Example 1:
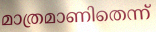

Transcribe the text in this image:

മാത്രമാണിതെന്ന്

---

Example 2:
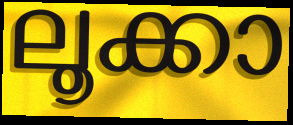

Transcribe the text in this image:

ലൂക്കാ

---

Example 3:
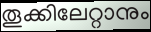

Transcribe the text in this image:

തൂക്കിലേറ്റാനും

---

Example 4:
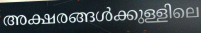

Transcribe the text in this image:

അക്ഷരങ്ങൾക്കുള്ളിലെ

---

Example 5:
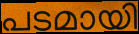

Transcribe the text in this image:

പടമായി